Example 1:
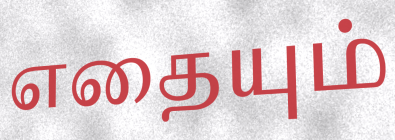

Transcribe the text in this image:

எதையும்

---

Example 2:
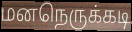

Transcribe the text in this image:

மனநெருக்கடி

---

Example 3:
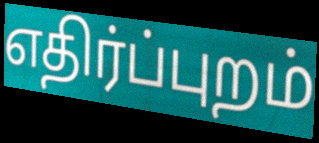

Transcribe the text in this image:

எதிர்ப்புறம்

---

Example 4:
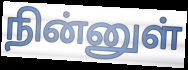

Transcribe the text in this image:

நின்னுள்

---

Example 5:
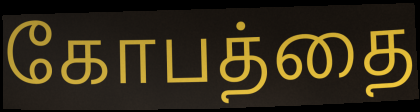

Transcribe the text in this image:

கோபத்தை